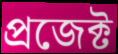
প্রজেক্ট